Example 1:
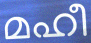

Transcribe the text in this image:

മഹീ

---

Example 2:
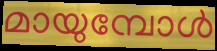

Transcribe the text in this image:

മായുമ്പോൾ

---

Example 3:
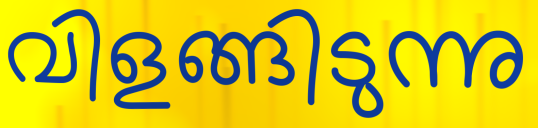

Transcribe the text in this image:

വിളങ്ങിടുന്നു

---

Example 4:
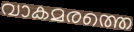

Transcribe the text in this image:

വാകമരത്തെ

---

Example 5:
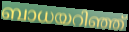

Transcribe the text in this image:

ബാധയറിഞ്ഞ്